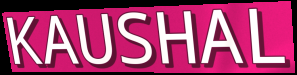
KAUSHAL